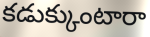
కడుక్కుంటారా